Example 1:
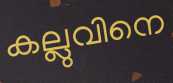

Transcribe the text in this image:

കല്ലുവിനെ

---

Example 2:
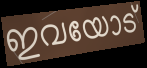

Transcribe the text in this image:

ഇവയോട്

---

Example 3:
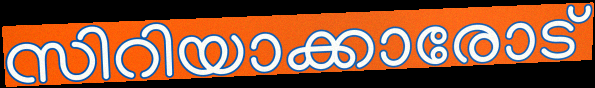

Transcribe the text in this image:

സിറിയാക്കാരോട്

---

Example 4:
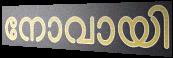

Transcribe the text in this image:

നോവായി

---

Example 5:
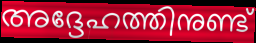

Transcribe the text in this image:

അദ്ദേഹത്തിനുണ്ട്